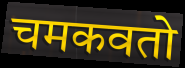
चमकवतो